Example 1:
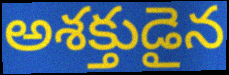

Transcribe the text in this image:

అశక్తుడైన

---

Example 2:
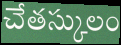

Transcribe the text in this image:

చేతస్కులం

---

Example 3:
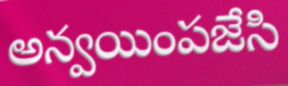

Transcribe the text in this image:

అన్వయింపజేసి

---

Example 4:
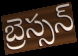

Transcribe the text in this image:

బ్రెస్సన్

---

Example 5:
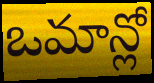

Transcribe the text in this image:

ఒమాన్లో